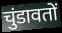
चुंडावतों